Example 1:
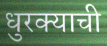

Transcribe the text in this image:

धुरक्याची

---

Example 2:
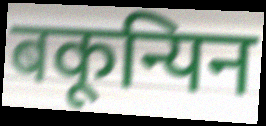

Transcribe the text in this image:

बकून्यिन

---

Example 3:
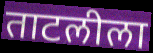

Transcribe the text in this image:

ताटलीला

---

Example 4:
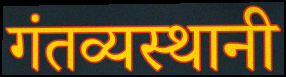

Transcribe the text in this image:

गंतव्यस्थानी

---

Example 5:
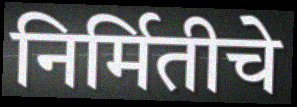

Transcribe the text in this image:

निर्मितीचे